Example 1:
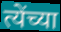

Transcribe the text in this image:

त्येंच्या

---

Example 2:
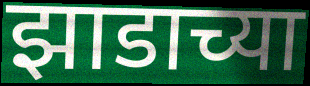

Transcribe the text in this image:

झाडाच्या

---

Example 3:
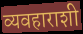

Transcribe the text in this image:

व्यवहाराशी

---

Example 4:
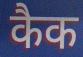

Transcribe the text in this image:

कैक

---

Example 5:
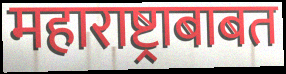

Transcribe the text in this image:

महाराष्ट्राबाबत